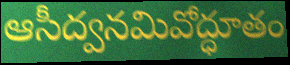
ఆసీద్వనమివోద్ధూతం